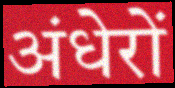
अंधेरों